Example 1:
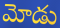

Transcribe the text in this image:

మోడు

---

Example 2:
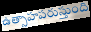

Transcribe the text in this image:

ఉత్సాహపరుస్తుంది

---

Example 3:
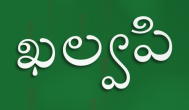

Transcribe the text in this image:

ఖల్వపి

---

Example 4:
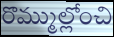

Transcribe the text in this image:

రొమ్ముల్లోంచి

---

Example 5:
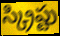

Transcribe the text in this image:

స్క్రిప్టు